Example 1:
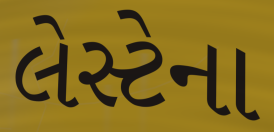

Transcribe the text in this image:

લેસ્ટેના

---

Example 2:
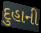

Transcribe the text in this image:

દુહાની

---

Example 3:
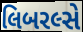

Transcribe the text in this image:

લિબરલ્સે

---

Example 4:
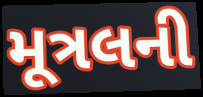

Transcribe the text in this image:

મૂત્રલની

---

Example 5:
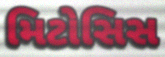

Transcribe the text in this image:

મિટોસિસ